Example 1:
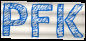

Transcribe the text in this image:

PFK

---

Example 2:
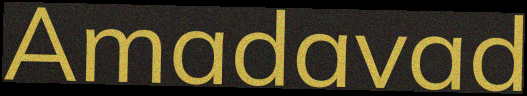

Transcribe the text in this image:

Amadavad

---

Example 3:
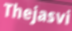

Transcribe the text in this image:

Thejasvi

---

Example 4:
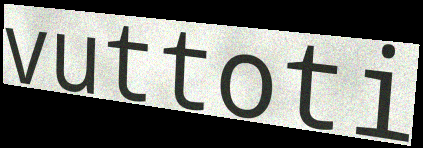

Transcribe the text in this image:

vuttoti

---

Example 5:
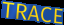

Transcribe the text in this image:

TRACE